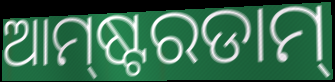
ଆମ୍‍ଷ୍ଟରଡାମ୍